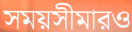
সময়সীমারও